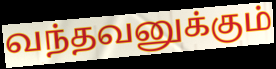
வந்தவனுக்கும்